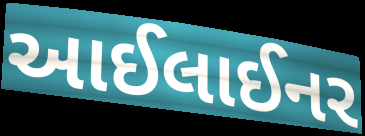
આઈલાઈનર